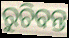
ରୁଚିବନ୍ତ